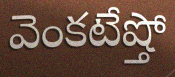
వెంకటేష్తో